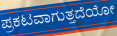
ಪ್ರಕಟವಾಗುತ್ತದೆಯೋ